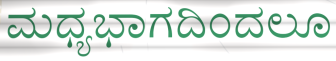
ಮಧ್ಯಭಾಗದಿಂದಲೂ